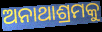
ଅନାଥାଶ୍ରମକୁ